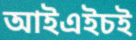
আইএইচই